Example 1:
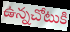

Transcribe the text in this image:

ఉన్నచోటుకి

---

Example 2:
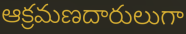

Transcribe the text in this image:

ఆక్రమణదారులుగా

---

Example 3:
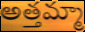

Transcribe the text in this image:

అత్తమ్మా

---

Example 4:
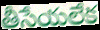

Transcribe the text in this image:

తీసేయలేక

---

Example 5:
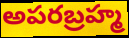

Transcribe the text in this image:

అపరబ్రహ్మ